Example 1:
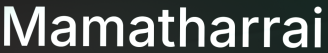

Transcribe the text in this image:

Mamatharrai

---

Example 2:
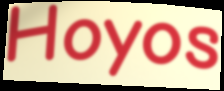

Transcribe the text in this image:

Hoyos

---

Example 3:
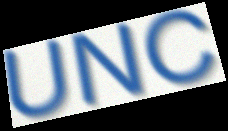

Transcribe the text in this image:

UNC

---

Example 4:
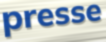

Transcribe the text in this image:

presse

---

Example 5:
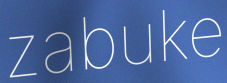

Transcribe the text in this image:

zabuke